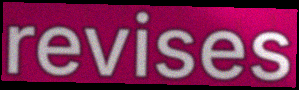
revises